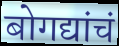
बोगद्यांचं